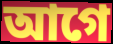
আগে